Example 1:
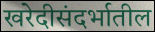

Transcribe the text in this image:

खरेदीसंदर्भातील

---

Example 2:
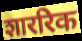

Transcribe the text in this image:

शाररिक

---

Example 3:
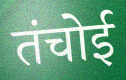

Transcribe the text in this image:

तंचोई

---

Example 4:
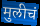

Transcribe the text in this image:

मुलीचं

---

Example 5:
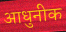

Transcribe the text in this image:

आधुनीक